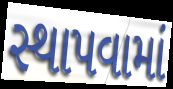
સ્થાપવામાં